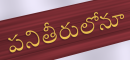
పనితీరులోనూ